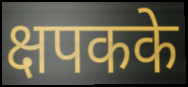
क्षपकके